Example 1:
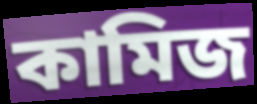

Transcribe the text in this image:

কামিজ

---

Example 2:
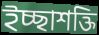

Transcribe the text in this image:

ইচ্ছাশক্তি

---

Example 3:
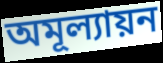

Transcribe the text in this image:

অমূল্যায়ন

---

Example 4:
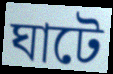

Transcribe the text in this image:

ঘাটে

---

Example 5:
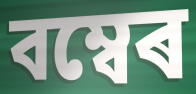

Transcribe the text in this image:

বম্বেৰ